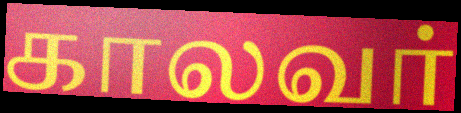
காலவர்